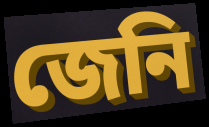
জেনি